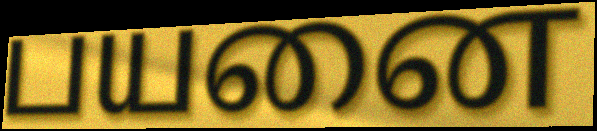
பயனை